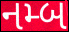
નમ્બ